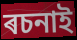
ৰচনাই